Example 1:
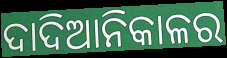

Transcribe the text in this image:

ଦାଦିଆନିକାଳର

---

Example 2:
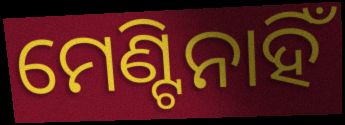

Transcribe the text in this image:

ମେଣ୍ଟିନାହିଁ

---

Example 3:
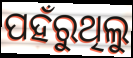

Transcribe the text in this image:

ପହଁରୁଥିଲୁ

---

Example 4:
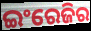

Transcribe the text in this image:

ଇଂରେଜିର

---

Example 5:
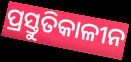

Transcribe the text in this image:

ପ୍ରସ୍ତୁତିକାଳୀନ